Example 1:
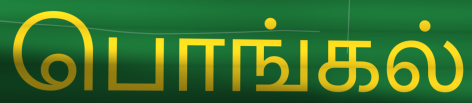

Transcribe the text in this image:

பொங்கல்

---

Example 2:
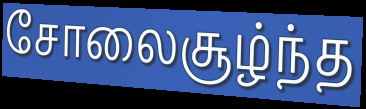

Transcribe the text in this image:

சோலைசூழ்ந்த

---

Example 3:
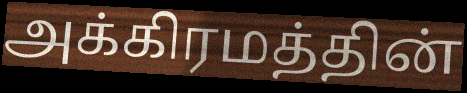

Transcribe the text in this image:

அக்கிரமத்தின்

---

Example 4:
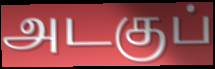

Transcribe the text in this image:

அடகுப்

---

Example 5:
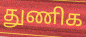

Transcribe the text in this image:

துணிக